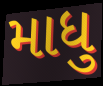
માધુ